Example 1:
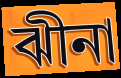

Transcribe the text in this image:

ঝীনা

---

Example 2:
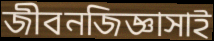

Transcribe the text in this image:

জীবনজিজ্ঞাসাই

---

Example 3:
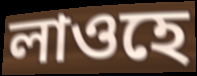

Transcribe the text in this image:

লাওহে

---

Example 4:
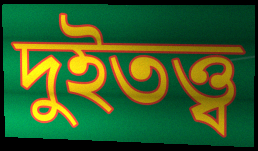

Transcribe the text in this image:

দুইতত্ত্ব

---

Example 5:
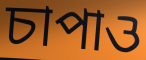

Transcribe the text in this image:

চাপাও